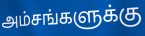
அம்சங்களுக்கு